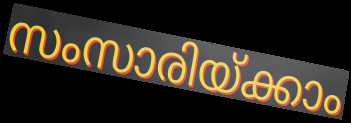
സംസാരിയ്ക്കാം